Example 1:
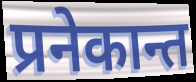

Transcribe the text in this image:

प्रनेकान्त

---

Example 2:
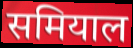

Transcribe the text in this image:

समियाल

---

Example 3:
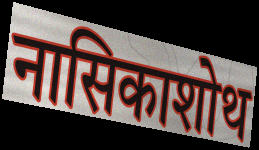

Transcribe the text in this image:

नासिकाशोथ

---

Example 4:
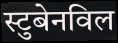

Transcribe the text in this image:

स्टुबेनविल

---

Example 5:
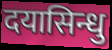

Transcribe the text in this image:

दयासिन्धु